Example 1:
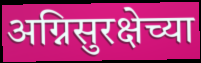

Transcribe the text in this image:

अग्निसुरक्षेच्या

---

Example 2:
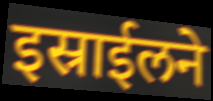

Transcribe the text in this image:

इस्राईलने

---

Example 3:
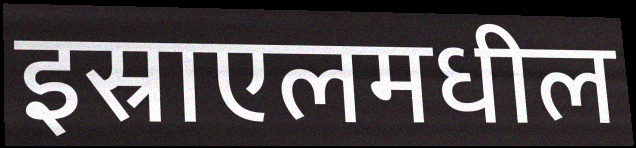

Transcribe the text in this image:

इस्राएलमधील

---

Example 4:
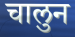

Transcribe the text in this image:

चालुन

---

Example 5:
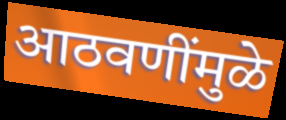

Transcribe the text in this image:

आठवणींमुळे